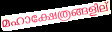
മഹാക്ഷേത്രങ്ങളില്